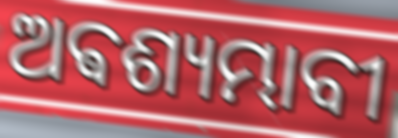
ଅଵଶ୍ୟମ୍ଭାବୀ